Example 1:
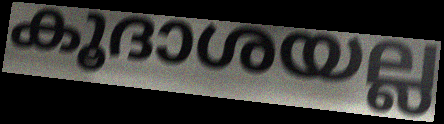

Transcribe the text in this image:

കൂദാശയല്ല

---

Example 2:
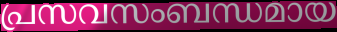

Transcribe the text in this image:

പ്രസവസംബന്ധമായ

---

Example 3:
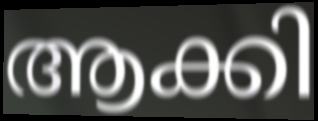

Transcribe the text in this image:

ആക്കി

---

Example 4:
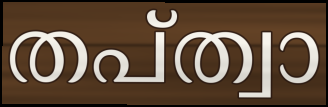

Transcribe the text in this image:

തപ്ത്വാ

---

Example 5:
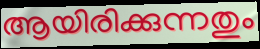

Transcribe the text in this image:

ആയിരിക്കുന്നതും